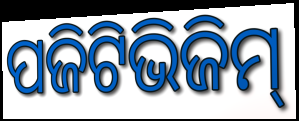
ପଜିଟିଭିଜିମ୍